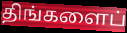
திங்களைப்